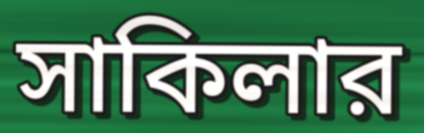
সাকিলার